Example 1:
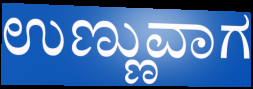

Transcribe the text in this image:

ಉಣ್ಣುವಾಗ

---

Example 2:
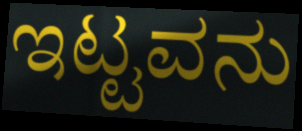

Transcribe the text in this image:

ಇಟ್ಟವನು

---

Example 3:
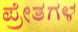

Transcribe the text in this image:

ಪ್ರೇತಗಳ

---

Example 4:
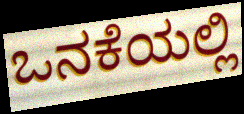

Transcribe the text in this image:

ಒನಕೆಯಲ್ಲಿ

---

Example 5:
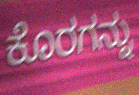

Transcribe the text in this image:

ಕೊರಗನ್ನು